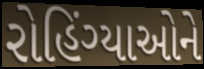
રોહિંગ્યાઓને